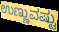
ಉಣ್ಣುವಷ್ಟು